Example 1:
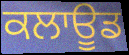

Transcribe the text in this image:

ਕਲਾਊਡ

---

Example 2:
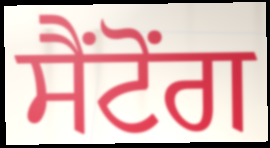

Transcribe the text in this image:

ਸੈਂਟੋਂਗ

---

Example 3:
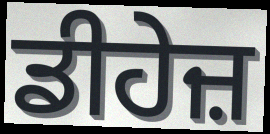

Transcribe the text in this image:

ਡੀਹੇਜ਼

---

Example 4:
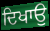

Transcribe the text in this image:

ਦਿਖਾਉ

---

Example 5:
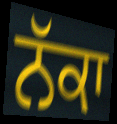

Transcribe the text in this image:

ਨੱਕਾ